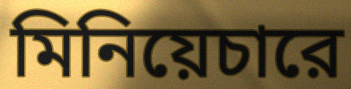
মিনিয়েচারে